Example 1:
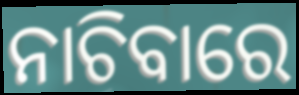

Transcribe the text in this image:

ନାଚିବାରେ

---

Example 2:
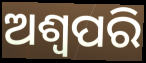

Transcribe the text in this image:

ଅଶ୍ୱପରି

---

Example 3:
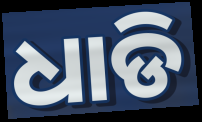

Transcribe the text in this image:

ଧାଡି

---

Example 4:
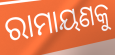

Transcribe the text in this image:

ରାମାୟଣକୁ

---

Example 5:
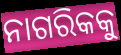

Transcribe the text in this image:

ନାଗରିକକୁ